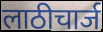
लाठीचार्ज